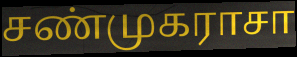
சண்முகராசா